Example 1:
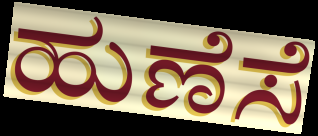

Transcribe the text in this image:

ಹುಣೆಸೆ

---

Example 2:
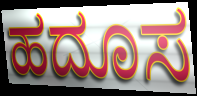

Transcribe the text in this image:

ಹದೂಸ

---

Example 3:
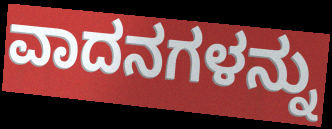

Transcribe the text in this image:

ವಾದನಗಳನ್ನು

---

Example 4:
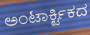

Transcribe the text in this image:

ಅಂಟಾರ್ಕ್ಟಿಕದ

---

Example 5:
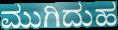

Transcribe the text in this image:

ಮುಗಿದುಹ